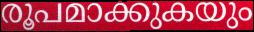
രൂപമാക്കുകയും